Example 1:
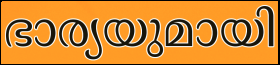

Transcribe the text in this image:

ഭാര്യയുമായി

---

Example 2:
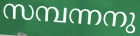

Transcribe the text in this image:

സമ്പന്നനു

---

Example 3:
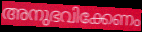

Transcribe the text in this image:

അനുഭവിക്കേണം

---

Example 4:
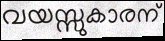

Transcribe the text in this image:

വയസ്സുകാരന്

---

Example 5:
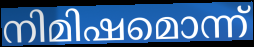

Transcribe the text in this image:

നിമിഷമൊന്ന്